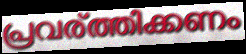
പ്രവര്ത്തിക്കണം